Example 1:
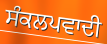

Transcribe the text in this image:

ਸੰਕਲਪਵਾਦੀ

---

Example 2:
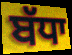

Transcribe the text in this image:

ਬੱਧਾ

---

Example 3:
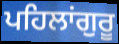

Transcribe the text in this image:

ਪਹਿਲਾਂਗੁਰੂ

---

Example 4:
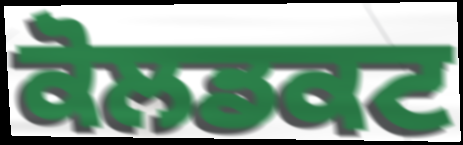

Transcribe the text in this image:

ਕੋਲਡਕਟ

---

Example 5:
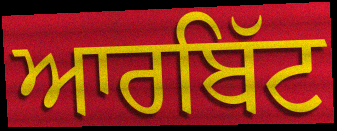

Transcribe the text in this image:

ਆਰਬਿੱਟ